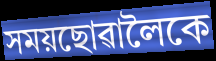
সময়ছোৱালৈকে